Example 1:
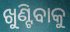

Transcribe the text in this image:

ଖୁଣ୍ଟିବାକୁ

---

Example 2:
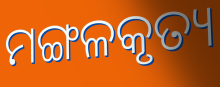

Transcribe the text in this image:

ମଙ୍ଗଳକୃତ୍ୟ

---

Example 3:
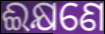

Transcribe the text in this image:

ଈକ୍ଷଣେ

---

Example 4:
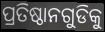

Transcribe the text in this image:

ପ୍ରତିଷ୍ଠାନଗୁଡିକୁ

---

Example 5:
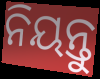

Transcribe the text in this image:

ନିୟନ୍ତୁ